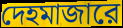
দেহমাজারে